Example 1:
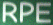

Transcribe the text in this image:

RPE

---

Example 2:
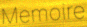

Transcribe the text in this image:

Memoire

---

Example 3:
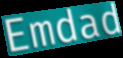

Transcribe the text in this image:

Emdad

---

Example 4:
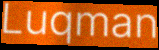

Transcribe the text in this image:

Luqman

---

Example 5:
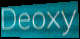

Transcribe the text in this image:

Deoxy